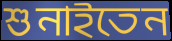
শুনাইতেন